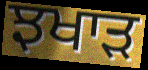
ਝਖਾੜ